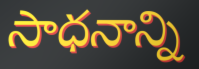
సాధనాన్ని